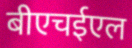
बीएचईएल